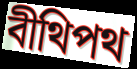
বীথিপথ